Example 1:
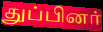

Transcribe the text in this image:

துப்பினர்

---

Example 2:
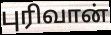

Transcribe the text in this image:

புரிவான்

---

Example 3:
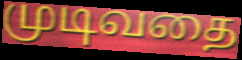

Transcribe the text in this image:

முடிவதை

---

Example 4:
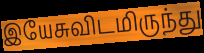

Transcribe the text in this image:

இயேசுவிடமிருந்து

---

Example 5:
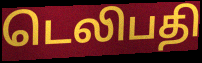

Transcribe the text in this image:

டெலிபதி